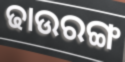
ଢାଉରଙ୍ଗ